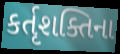
કર્તૃશક્તિના